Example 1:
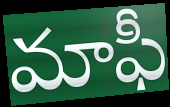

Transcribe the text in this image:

మాఫీ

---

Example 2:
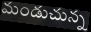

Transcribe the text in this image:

మండుచున్న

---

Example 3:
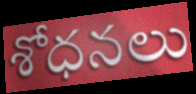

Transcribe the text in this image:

శోధనలు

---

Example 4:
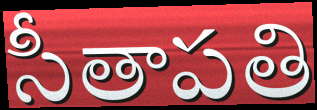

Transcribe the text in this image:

సీతాపతి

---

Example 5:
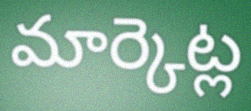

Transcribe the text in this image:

మార్కెట్ల